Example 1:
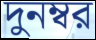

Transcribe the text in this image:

দুনম্বর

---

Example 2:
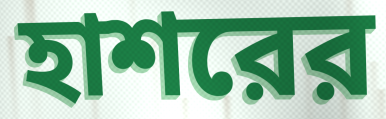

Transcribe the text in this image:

হাশরের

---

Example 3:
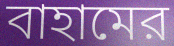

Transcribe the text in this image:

বাহামের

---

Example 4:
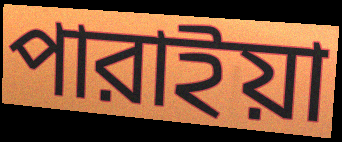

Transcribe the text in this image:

পারাইয়া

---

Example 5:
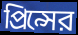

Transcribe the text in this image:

প্রিন্সের